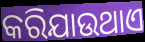
କରିଯାଉଥାଏ